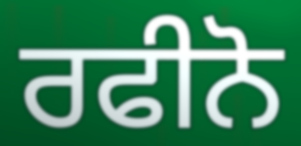
ਰਫੀਨੋ